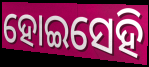
ହୋଇସେହି